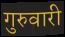
गुरुवारी